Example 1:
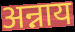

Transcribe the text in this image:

अन्नाय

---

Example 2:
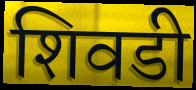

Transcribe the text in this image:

शिवडी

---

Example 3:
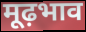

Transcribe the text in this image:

मूढ़भाव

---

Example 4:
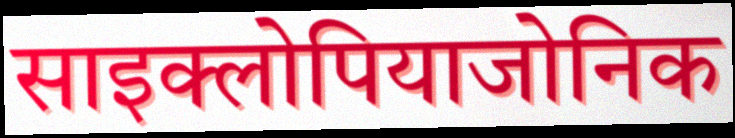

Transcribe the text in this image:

साइक्लोपियाजोनिक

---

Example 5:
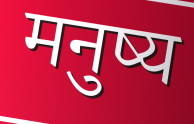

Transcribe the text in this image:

मनुष्य